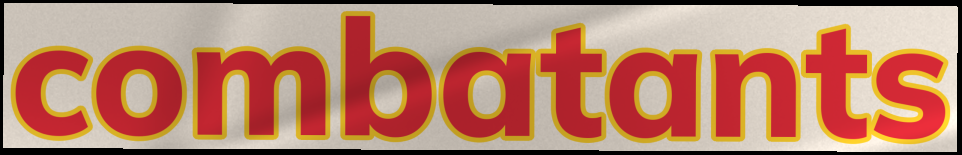
combatants